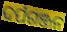
ଦର୍ପଗଞ୍ଜନ